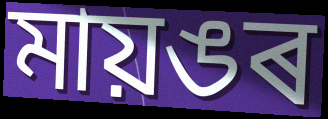
মায়ঙৰ